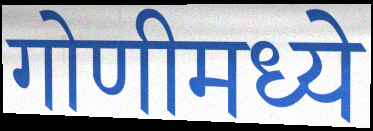
गोणीमध्ये